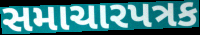
સમાચારપત્રક